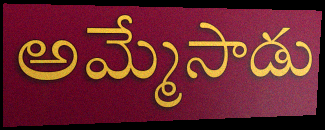
అమ్మేసాడు